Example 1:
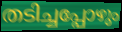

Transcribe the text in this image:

തടിച്ചപ്പോഴും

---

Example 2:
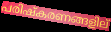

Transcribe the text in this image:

പരിഷ്കരണങ്ങളില്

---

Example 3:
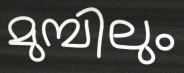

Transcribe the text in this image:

മുമ്പിലും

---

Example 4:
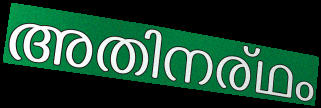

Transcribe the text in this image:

അതിനര്ഥം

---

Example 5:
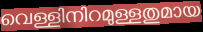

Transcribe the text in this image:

വെള്ളിനിറമുള്ളതുമായ